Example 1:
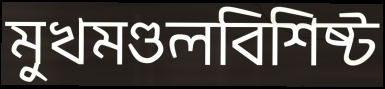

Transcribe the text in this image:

মুখমণ্ডলবিশিষ্ট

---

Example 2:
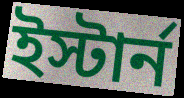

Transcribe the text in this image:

ইস্টার্ন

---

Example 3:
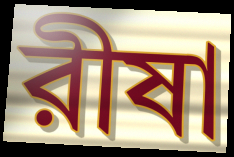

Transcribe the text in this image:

রীষা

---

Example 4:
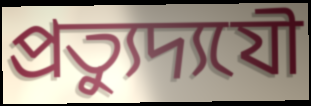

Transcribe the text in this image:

প্রত্যুদ্যযৌ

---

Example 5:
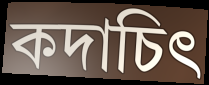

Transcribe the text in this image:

কদাচিৎ